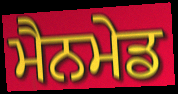
ਮੈਨਮੇਡ